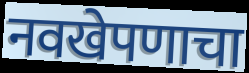
नवखेपणाचा